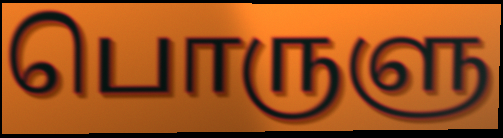
பொருளு